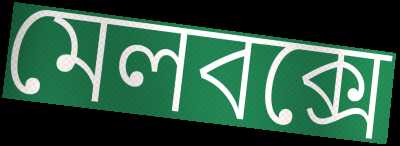
মেলবক্সে